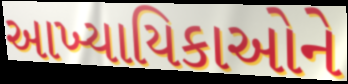
આખ્યાયિકાઓને